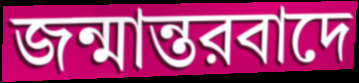
জন্মান্তরবাদে